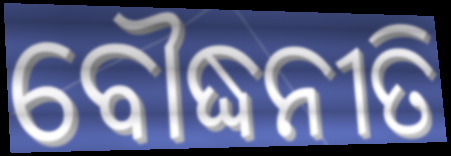
ବୌଦ୍ଧନୀତି